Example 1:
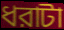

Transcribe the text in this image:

ধরাটা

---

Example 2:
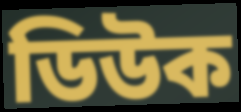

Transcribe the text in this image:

ডিউক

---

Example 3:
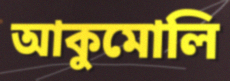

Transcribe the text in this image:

আকুমোলি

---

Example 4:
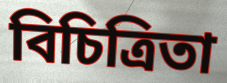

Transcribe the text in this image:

বিচিত্রিতা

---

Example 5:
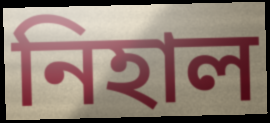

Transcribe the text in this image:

নিহাল